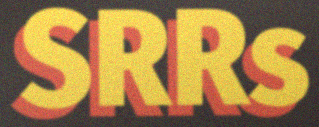
SRRs